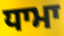
ਧਾਮਾ